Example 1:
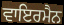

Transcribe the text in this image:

ਵਾਇਰਮੈਨ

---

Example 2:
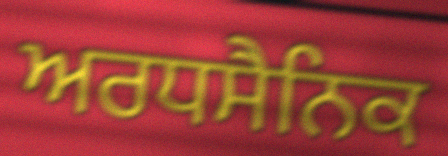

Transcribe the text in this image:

ਅਰਧਸੈਨਿਕ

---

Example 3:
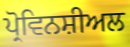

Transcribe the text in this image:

ਪ੍ਰੋਵਿਨਸ਼ੀਅਲ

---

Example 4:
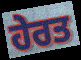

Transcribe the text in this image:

ਹੇਰਤ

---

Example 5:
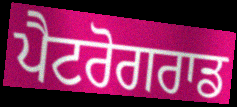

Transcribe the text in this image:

ਪੈਟਰੋਗਰਾਡ